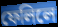
ফেলিলে